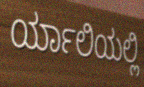
ರ್ಯಾಲಿಯಲ್ಲಿ